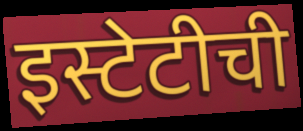
इस्टेटीची